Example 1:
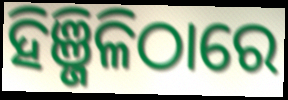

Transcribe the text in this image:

ହିଞ୍ଜିଳିଠାରେ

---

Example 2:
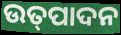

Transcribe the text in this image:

ଉତ୍‍ପାଦନ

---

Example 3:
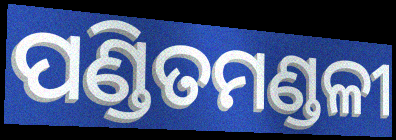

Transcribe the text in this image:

ପଣ୍ଡିତମଣ୍ଡଳୀ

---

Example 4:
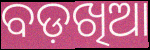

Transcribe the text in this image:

ବଡ଼ଖିଆ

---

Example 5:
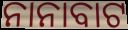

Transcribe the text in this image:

ନାନାବାଟ